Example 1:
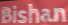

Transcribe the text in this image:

Bishan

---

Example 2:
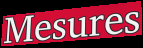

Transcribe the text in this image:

Mesures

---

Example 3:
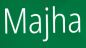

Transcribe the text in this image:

Majha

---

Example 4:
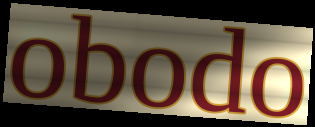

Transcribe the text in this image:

obodo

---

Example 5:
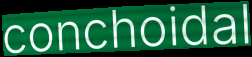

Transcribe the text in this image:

conchoidal